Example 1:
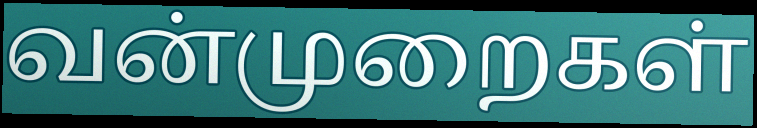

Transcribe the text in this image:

வன்முறைகள்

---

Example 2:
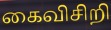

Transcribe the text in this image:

கைவிசிறி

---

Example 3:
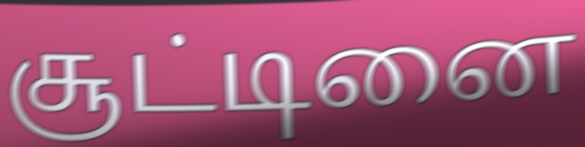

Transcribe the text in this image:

சூட்டினை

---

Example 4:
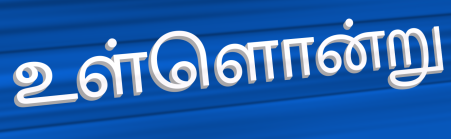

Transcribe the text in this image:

உள்ளொன்று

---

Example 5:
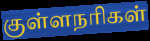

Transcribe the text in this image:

குள்ளநரிகள்